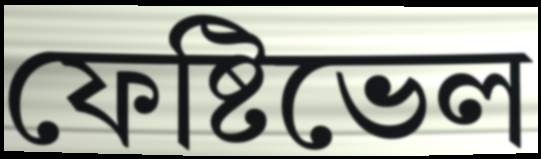
ফেষ্টিভেল